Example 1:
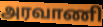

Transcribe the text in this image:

அரவாணி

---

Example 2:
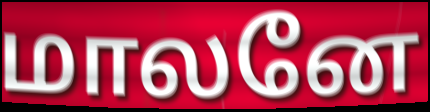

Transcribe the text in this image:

மாலனே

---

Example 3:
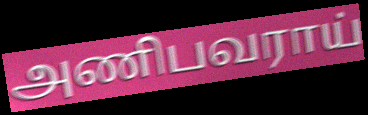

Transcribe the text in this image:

அணிபவராய்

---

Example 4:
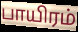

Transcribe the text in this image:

பாயிரம்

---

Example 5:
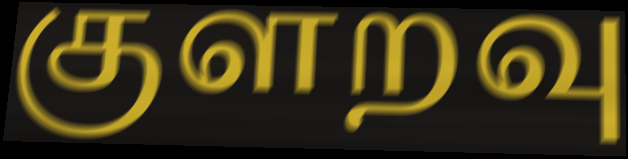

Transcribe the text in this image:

குளறவு